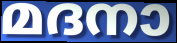
മദനാ